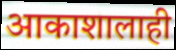
आकाशालाही